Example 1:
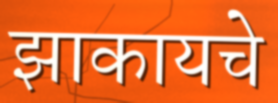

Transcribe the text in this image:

झाकायचे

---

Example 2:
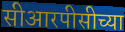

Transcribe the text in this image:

सीआरपीसीच्या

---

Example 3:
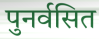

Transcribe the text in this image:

पुनर्वसित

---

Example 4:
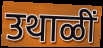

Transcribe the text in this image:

उथाळीं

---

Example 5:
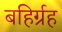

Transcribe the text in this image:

बहिर्ग्रह